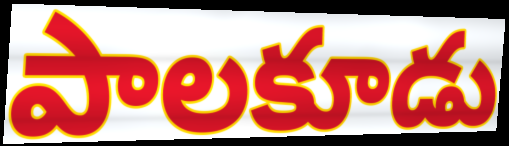
పాలకూడు